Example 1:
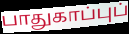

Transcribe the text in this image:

பாதுகாப்புப்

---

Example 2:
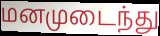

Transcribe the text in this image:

மனமுடைந்து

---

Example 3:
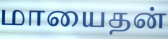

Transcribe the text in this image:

மாயைதன்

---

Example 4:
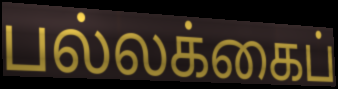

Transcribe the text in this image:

பல்லக்கைப்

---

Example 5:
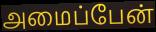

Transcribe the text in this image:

அமைப்பேன்